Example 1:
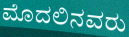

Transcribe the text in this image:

ಮೊದಲಿನವರು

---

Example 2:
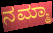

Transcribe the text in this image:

ನಮ್ಮಾ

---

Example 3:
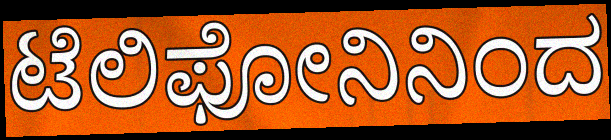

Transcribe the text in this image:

ಟೆಲಿಫೋನಿನಿಂದ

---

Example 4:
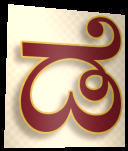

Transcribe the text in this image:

ಡೆ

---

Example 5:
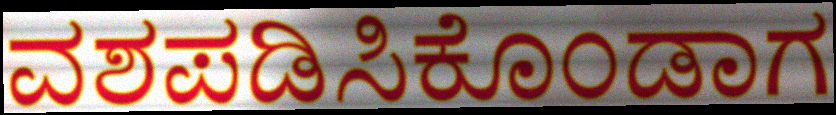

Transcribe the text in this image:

ವಶಪಡಿಸಿಕೊಂಡಾಗ